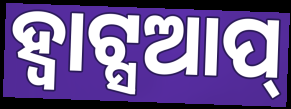
ହ୍ବାଟ୍ସଆପ୍